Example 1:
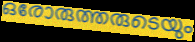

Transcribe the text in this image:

ഒരോരുത്തരുടെയും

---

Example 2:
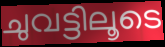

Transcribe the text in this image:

ചുവട്ടിലൂടെ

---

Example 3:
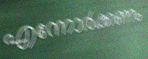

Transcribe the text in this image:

എന്നോർക്കണം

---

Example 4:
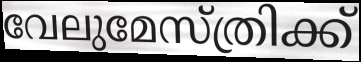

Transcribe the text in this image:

വേലുമേസ്ത്രിക്ക്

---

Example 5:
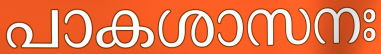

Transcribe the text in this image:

പാകശാസനഃ